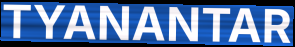
TYANANTAR